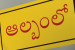
ఆల్బంలో